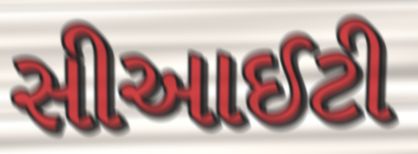
સીઆઈટી